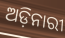
ଅଡ଼ିନାରୀ